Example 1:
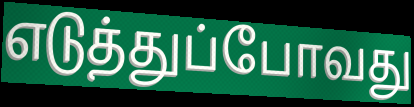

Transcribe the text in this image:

எடுத்துப்போவது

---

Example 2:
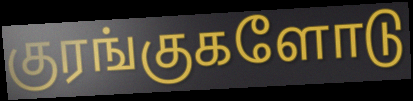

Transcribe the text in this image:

குரங்குகளோடு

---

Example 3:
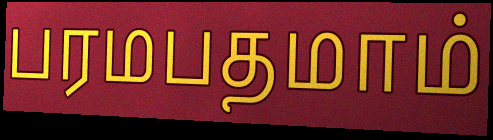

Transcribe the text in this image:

பரமபதமாம்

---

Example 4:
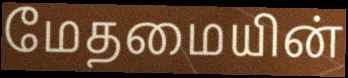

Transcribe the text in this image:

மேதமையின்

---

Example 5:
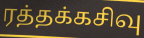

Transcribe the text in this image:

ரத்தக்கசிவு